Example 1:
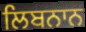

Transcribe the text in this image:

ਲਿਬਨਾਨ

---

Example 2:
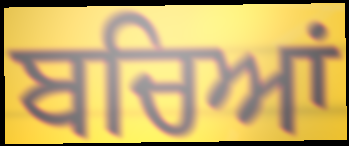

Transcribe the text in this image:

ਬਚਿਆਂ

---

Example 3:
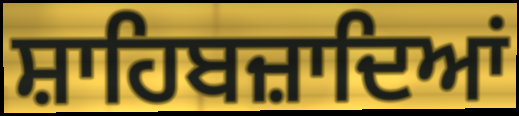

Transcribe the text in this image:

ਸ਼ਾਹਿਬਜ਼ਾਦਿਆਂ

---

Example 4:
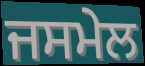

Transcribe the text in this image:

ਜਸਮੇਲ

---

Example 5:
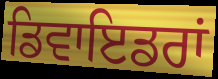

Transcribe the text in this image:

ਡਿਵਾਇਡਰਾਂ